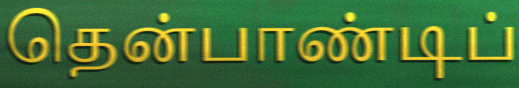
தென்பாண்டிப்